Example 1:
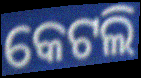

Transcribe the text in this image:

କେଟଲି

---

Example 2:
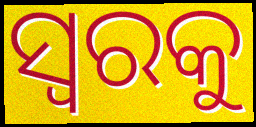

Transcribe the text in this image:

ସ୍ୱରକୁ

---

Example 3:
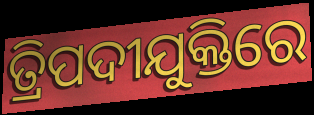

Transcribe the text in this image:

ତ୍ରିପଦୀଯୁକ୍ତିରେ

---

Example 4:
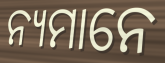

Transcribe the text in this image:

ନ୍ୟମାନେ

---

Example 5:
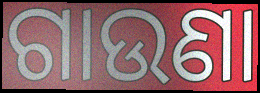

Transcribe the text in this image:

ଗାଉଣା